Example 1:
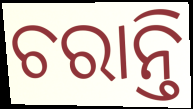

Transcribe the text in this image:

ଚରାନ୍ତି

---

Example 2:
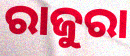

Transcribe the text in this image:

ରାଜୁରା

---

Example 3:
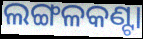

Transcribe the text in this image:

ଲଙ୍ଗଳକଣ୍ଟା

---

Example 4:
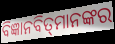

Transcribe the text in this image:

ବିଜ୍ଞାନବିତ୍‌ମାନଙ୍କର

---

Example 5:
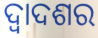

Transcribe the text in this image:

ଦ୍ୱାଦଶର